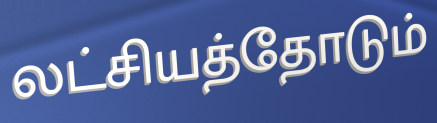
லட்சியத்தோடும்